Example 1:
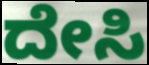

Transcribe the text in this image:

ದೇಸಿ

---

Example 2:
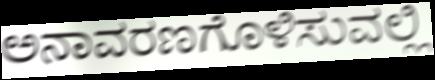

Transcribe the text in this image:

ಅನಾವರಣಗೊಳಿಸುವಲ್ಲಿ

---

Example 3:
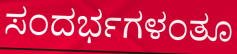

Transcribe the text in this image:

ಸಂದರ್ಭಗಳಂತೂ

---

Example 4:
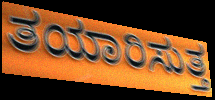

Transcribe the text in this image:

ತಯಾರಿಸುತ್ತ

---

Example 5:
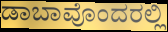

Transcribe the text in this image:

ಡಾಬಾವೊಂದರಲ್ಲಿ